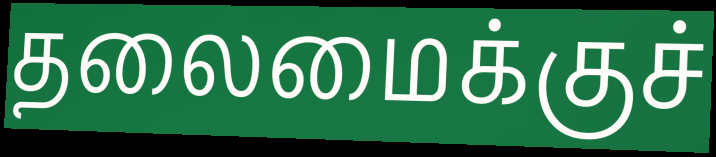
தலைமைக்குச்